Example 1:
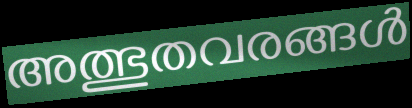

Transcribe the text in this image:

അത്ഭുതവരങ്ങൾ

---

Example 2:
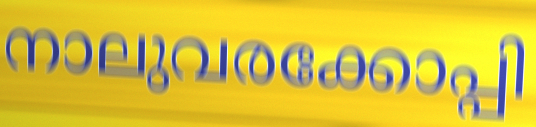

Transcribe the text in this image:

നാലുവരക്കോപ്പി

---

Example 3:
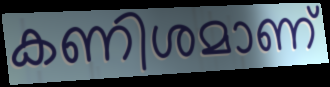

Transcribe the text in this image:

കണിശമാണ്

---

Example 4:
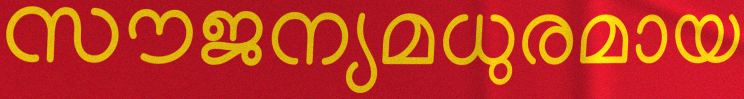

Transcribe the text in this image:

സൗജന്യമധുരമായ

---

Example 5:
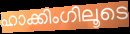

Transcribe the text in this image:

ഹാക്കിംഗിലൂടെ